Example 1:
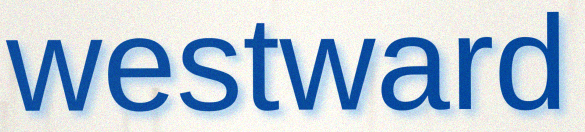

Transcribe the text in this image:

westward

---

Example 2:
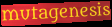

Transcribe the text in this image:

mutagenesis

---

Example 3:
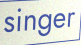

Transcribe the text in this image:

singer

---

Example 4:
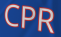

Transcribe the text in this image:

CPR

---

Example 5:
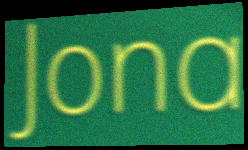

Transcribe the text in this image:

Jona